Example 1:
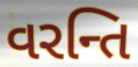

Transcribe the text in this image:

વરન્તિ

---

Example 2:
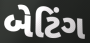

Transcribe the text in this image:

બેટિંગ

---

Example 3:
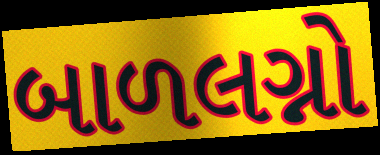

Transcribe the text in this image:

બાળલગ્નો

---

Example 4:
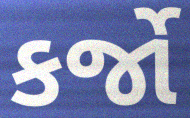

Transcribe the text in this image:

કર્જો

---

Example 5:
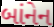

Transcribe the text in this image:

બાંનેન